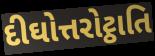
દીઘોત્તરોટ્ઠાતિ